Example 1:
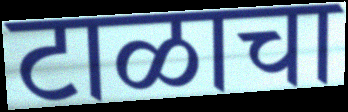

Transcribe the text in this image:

टाळाचा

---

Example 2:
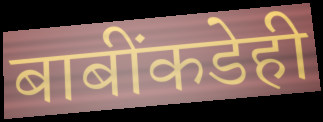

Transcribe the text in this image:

बाबींकडेही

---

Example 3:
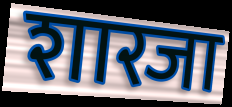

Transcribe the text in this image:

शारजा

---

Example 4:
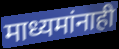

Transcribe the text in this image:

माध्यमांनाही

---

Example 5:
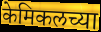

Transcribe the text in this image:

केमिकलच्या